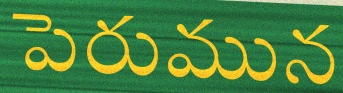
పెరుమున